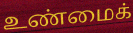
உண்மைக்